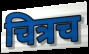
चित्रच